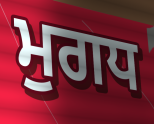
ਮੁਗਧ